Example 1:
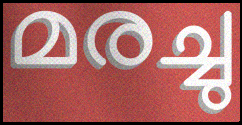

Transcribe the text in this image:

മരച്ചു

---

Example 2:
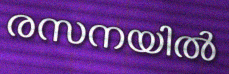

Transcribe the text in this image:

രസനയിൽ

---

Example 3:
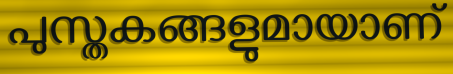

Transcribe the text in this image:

പുസ്തകങ്ങളുമായാണ്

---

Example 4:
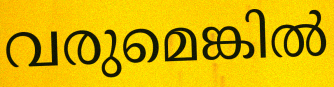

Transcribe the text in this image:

വരുമെങ്കിൽ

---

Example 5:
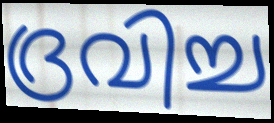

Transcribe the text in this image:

ദ്രവിച്ച